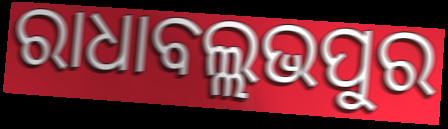
ରାଧାବଲ୍ଲଭପୁର